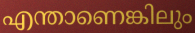
എന്താണെങ്കിലും